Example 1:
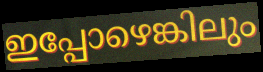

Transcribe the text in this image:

ഇപ്പോഴെങ്കിലും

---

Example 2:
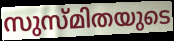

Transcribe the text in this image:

സുസ്മിതയുടെ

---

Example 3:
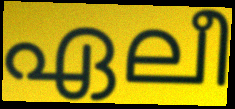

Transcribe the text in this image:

ഏലീ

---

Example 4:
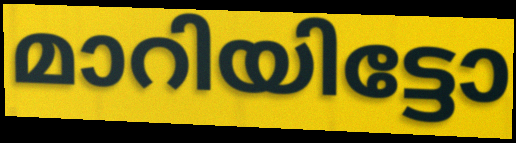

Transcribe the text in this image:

മാറിയിട്ടോ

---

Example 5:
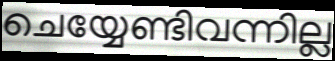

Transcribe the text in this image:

ചെയ്യേണ്ടിവന്നില്ല